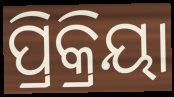
ପ୍ରିକ୍ରିୟା